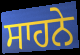
ਸਾਹਨੇ